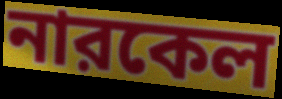
নারকেল